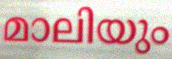
മാലിയും